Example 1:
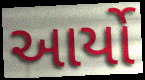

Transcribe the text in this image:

આર્યો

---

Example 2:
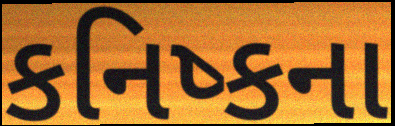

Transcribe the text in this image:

કનિષ્કના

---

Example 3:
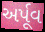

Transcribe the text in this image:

અર્પૂવ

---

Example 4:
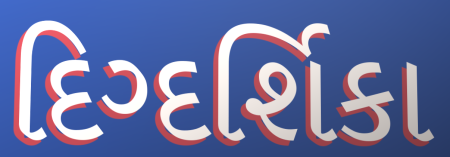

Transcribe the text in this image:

દિગ્દર્શિકા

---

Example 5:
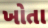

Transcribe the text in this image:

ખોતા